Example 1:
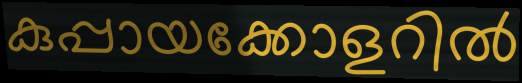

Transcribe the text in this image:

കുപ്പായക്കോളറിൽ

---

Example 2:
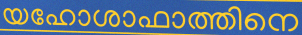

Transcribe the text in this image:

യഹോശാഫാത്തിനെ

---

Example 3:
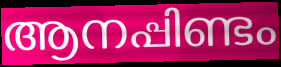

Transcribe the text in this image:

ആനപ്പിണ്ടം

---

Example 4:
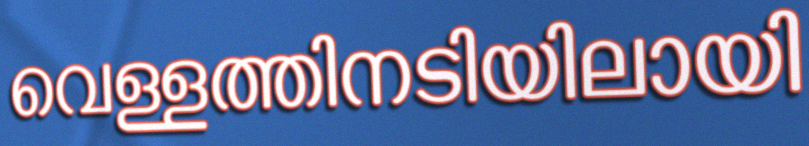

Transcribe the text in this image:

വെള്ളത്തിനടിയിലായി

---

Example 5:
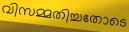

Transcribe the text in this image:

വിസമ്മതിച്ചതോടെ